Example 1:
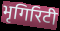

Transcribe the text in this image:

भृगिरिटी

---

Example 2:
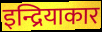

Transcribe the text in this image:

इन्द्रियाकार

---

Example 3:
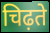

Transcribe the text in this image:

चिढ़ते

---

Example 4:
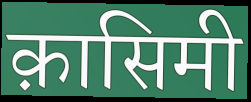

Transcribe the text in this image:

क़ासिमी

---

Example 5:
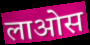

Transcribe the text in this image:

लाओस